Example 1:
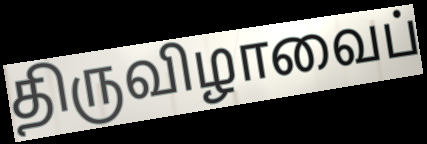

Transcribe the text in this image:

திருவிழாவைப்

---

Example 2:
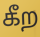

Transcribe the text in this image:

கீற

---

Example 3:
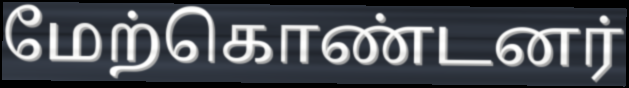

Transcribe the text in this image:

மேற்கொண்டனர்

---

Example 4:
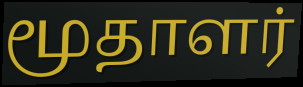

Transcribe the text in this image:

மூதாளர்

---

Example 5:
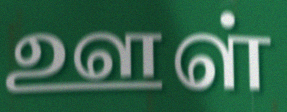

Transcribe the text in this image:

ஊள்